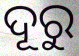
ଦୂରୁ